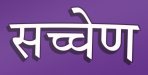
सच्चेण